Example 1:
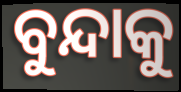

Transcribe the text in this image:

ବୁନ୍ଦାକୁ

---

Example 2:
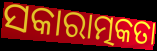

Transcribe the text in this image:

ସକାରାତ୍ମକତା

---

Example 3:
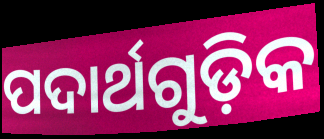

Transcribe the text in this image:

ପଦାର୍ଥଗୁଡ଼ିକ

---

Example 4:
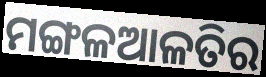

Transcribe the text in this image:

ମଙ୍ଗଳଆଳତିର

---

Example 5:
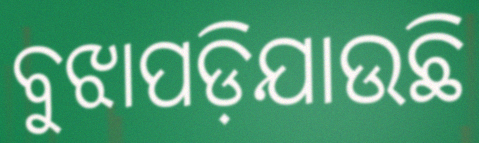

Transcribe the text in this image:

ବୁଝାପଡ଼ିଯାଉଛି